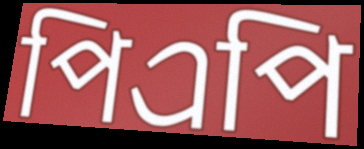
পিএপি